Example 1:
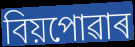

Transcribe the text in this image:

বিয়পোৱাৰ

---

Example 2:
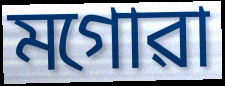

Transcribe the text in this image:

মগোৱা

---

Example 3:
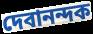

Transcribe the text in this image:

দেবানন্দক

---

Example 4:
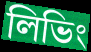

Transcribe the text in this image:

লিভিং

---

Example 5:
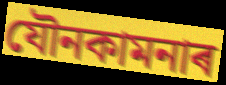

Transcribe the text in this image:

যৌনকামনাৰ